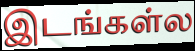
இடங்கள்ல